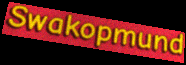
Swakopmund